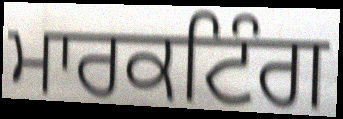
ਮਾਰਕਟਿੰਗ